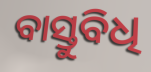
ବାସ୍ତୁବିଧି